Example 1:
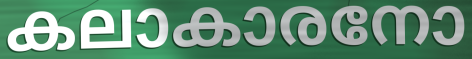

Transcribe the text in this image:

കലാകാരനോ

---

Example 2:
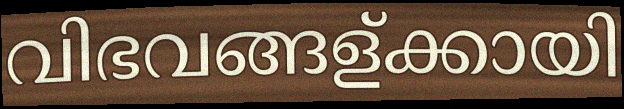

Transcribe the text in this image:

വിഭവങ്ങള്ക്കായി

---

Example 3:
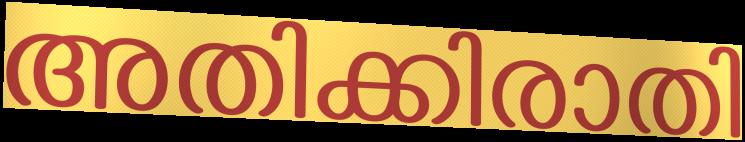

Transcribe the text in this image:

അതിക്കിരാതി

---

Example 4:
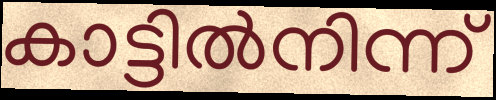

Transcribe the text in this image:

കാട്ടിൽനിന്ന്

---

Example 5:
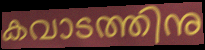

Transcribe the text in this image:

കവാടത്തിനു